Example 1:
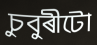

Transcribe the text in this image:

চুবুৰীটো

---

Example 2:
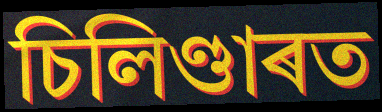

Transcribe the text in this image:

চিলিণ্ডাৰত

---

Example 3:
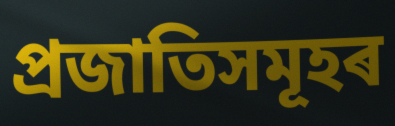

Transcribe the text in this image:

প্ৰজাতিসমূহৰ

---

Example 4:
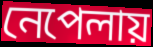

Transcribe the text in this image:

নেপেলায়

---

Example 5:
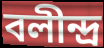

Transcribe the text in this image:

বলীন্দ্ৰ